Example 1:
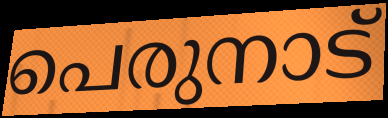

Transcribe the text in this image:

പെരുനാട്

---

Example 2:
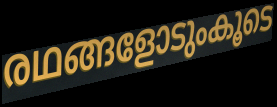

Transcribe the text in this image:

രഥങ്ങളോടുംകൂടെ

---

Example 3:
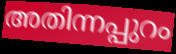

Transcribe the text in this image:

അതിന്നപ്പുറം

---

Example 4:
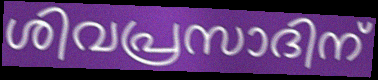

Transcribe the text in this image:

ശിവപ്രസാദിന്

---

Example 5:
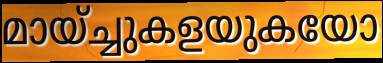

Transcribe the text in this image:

മായ്ച്ചുകളയുകയോ